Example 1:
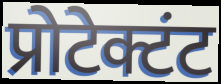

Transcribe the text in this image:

प्रोटेक्टंट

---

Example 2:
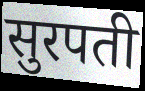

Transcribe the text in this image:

सुरपती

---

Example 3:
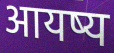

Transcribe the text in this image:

आयष्य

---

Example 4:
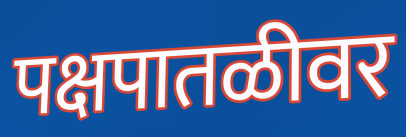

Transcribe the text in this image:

पक्षपातळीवर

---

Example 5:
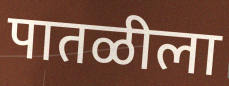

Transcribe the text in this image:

पातळीला